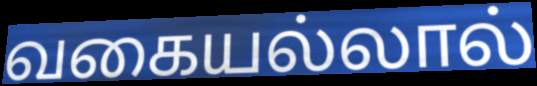
வகையல்லால்